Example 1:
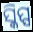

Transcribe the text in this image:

ସ୍କିପ୍ସ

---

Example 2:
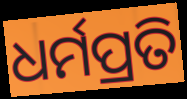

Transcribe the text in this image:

ଧର୍ମପ୍ରତି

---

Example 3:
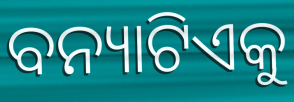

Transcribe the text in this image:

ବନ୍ୟାଟିଏକୁ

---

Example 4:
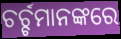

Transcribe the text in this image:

ଚର୍ଚ୍ଚମାନଙ୍କରେ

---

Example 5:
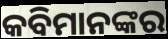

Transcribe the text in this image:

କବିମାନଙ୍କର